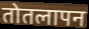
तोतलापन